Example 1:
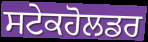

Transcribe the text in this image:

ਸਟੇਕਹੋਲਡਰ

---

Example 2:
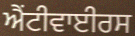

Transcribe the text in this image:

ਐਂਟੀਵਾਈਰਸ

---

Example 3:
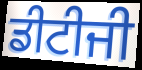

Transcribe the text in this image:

ਡੀਟੀਜੀ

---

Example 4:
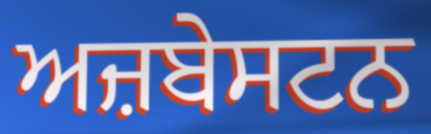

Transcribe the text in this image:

ਅਜ਼ਬੇਸਟਨ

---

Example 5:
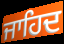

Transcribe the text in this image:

ਜਾਹਿਦ